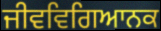
ਜੀਵਵਿਗਿਆਨਕ